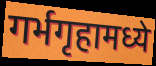
गर्भगृहामध्ये